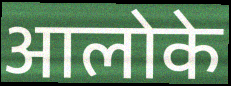
आलोके